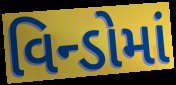
વિન્ડોમાં